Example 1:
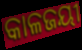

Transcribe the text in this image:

କାଳଜୟୀ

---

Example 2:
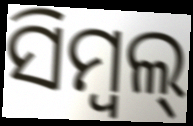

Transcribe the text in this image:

ସିମ୍ବଲ୍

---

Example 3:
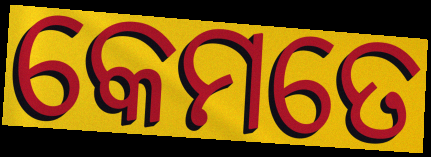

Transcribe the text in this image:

କେମତେ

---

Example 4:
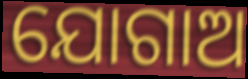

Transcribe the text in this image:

ଯୋଗାଅ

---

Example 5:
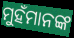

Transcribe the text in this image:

ମୁହଁମାନଙ୍କ